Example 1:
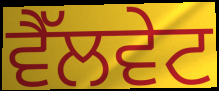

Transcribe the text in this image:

ਵੈੱਲਵੇਟ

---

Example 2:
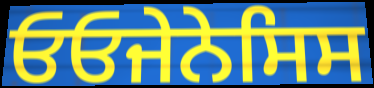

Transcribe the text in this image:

ਓਓਜੇਨੇਸਿਸ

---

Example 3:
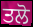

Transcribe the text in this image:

ਤਲੋ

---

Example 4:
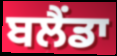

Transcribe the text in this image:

ਬਲੈਂਡਾ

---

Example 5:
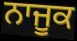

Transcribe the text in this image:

ਨਾਜੂਕ